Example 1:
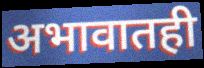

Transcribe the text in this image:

अभावातही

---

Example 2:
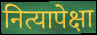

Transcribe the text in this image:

नित्यापेक्षा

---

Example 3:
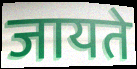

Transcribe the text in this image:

जायते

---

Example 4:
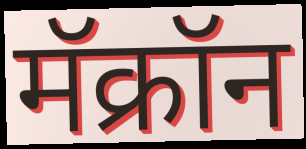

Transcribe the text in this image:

मॅक्रॉन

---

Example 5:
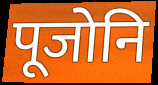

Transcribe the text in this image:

पूजोनि